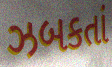
ઝબકતાં